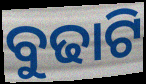
ବୁଢାଟି